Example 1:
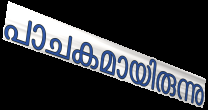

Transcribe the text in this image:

പാചകമായിരുന്നു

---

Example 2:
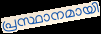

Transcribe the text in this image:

പ്രസ്ഥാനമായി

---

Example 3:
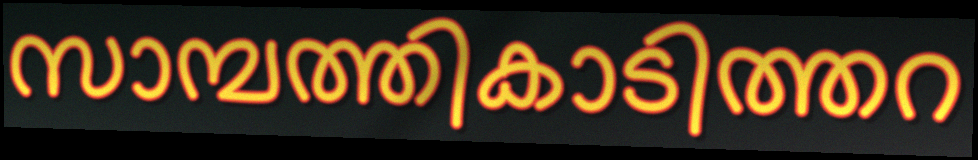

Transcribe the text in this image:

സാമ്പത്തികാടിത്തറ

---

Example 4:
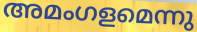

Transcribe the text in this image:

അമംഗളമെന്നു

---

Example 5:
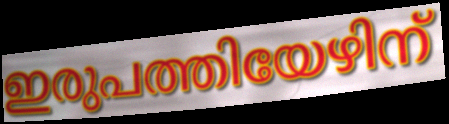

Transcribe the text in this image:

ഇരുപത്തിയേഴിന്